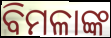
ବିମଳାଙ୍କ